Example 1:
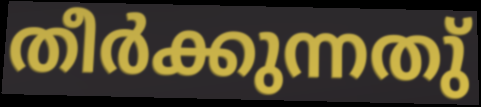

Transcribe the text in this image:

തീർക്കുന്നതു്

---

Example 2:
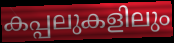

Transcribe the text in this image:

കപ്പലുകളിലും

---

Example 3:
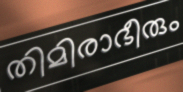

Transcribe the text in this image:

തിമിരാഭീരും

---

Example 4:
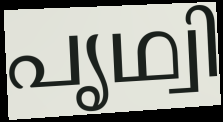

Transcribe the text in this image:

പൃഥ്വി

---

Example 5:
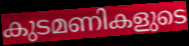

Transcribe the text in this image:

കുടമണികളുടെ